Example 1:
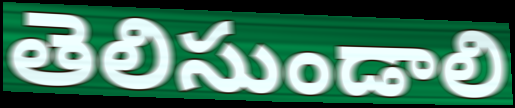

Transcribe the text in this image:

తెలిసుండాలి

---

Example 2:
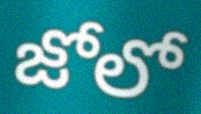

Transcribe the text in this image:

జోలో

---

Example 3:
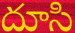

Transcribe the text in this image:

దూసి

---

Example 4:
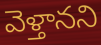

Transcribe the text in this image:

వెళ్తానని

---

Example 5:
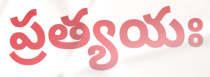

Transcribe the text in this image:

ప్రత్యయః